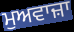
ਮੁਅਵਾਜ਼ਾ